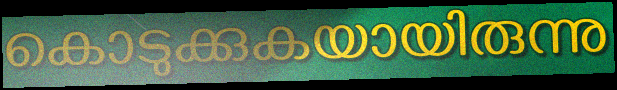
കൊടുക്കുകയായിരുന്നു